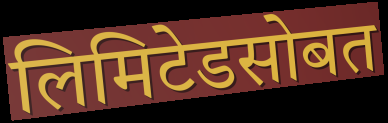
लिमिटेडसोबत